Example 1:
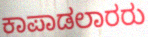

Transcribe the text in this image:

ಕಾಪಾಡಲಾರರು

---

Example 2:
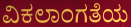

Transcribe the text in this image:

ವಿಕಲಾಂಗತೆಯ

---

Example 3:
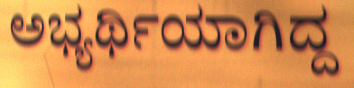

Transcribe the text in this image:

ಅಭ್ಯರ್ಥಿಯಾಗಿದ್ದ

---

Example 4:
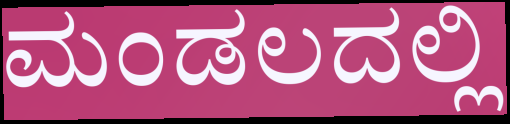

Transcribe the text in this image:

ಮಂಡಲದಲ್ಲಿ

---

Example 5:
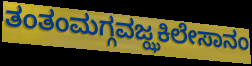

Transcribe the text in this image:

ತಂತಂಮಗ್ಗವಜ್ಝಕಿಲೇಸಾನಂ